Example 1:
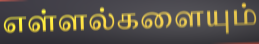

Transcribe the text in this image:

எள்ளல்களையும்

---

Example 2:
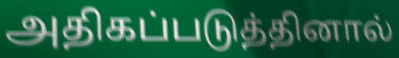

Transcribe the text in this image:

அதிகப்படுத்தினால்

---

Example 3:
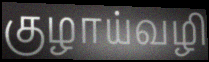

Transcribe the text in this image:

குழாய்வழி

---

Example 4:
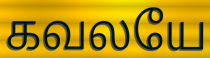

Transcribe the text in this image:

கவலயே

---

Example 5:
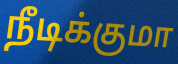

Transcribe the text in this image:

நீடிக்குமா